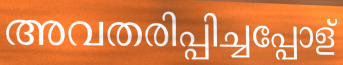
അവതരിപ്പിച്ചപ്പോള്